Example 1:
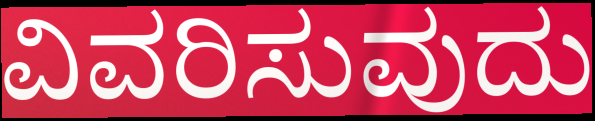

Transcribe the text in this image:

ವಿವರಿಸುವುದು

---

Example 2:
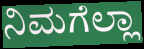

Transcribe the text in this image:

ನಿಮಗೆಲ್ಲಾ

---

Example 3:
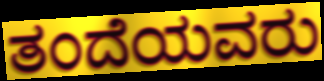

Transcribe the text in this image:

ತಂದೆಯವರು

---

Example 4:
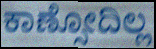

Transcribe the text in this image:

ಕಾಣ್ಸೋದಿಲ್ಲ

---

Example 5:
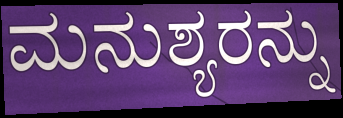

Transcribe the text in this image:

ಮನುಶ್ಯರನ್ನು